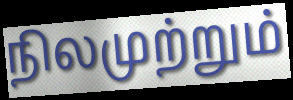
நிலமுற்றும்